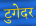
टुगेदर